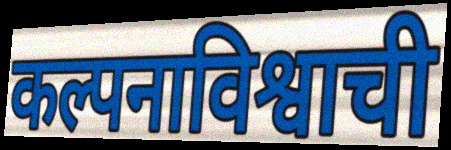
कल्पनाविश्वाची